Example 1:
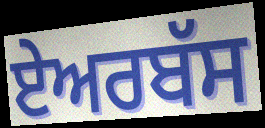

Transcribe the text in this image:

ਏਅਰਬੱਸ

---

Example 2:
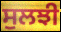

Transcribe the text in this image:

ਸੁਲਝੀ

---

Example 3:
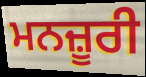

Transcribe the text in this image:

ਮਨਜ਼ੂਰੀ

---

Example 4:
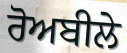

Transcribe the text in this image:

ਰੋਅਬੀਲੇ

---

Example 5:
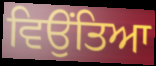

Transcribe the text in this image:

ਵਿਉਂਤਿਆ